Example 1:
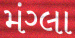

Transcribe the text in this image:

મંગ્લા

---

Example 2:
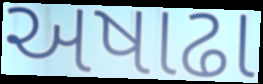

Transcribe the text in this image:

અષાઢા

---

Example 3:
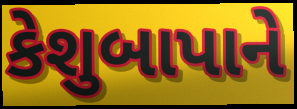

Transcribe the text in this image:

કેશુબાપાને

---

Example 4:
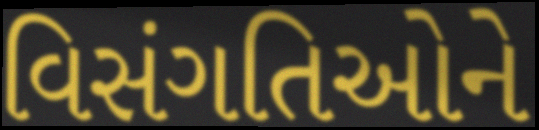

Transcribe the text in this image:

વિસંગતિઓને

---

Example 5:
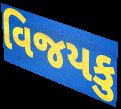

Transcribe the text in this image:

વિજયકુ